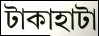
টাকাহাটা